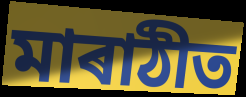
মাৰাঠীত